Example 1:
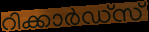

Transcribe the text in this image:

റിക്കാർഡ്സ്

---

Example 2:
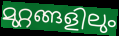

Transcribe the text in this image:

മുറ്റങ്ങളിലും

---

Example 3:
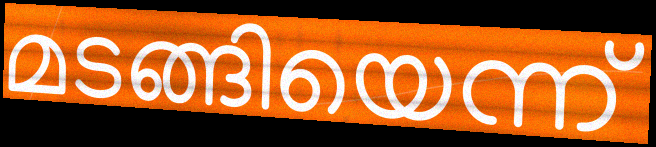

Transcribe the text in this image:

മടങ്ങിയെന്ന്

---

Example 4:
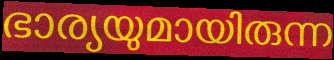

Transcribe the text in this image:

ഭാര്യയുമായിരുന്ന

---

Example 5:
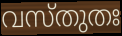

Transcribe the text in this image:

വസ്തുതഃ